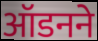
ऑडनने